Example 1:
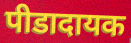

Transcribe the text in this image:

पीडादायक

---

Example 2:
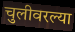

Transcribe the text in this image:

चुलीवरल्या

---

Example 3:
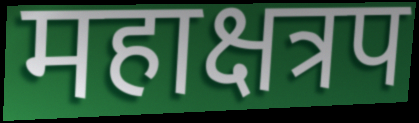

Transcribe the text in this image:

महाक्षत्रप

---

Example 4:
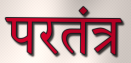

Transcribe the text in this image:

परतंत्र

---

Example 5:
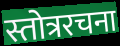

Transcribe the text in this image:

स्तोत्ररचना